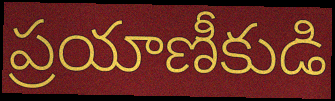
ప్రయాణీకుడి